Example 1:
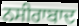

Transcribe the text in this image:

ਨਸੀਰਾਬਾਦ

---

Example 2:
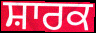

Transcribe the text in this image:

ਸ਼ਾਰਕ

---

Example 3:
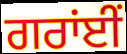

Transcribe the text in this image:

ਗਰਾਂਈਂ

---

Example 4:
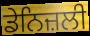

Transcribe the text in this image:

ਡੇਨਿਜ਼ਲੀ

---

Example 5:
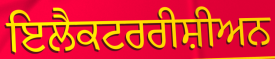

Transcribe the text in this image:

ਇਲੈਕਟਰਰੀਸ਼ੀਅਨ